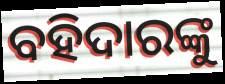
ବହିଦାରଙ୍କୁ